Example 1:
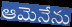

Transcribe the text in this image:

ఆమెనేను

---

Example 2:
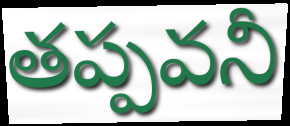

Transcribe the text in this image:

తప్పవనీ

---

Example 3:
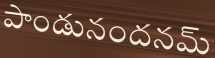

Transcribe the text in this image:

పాండునందనమ్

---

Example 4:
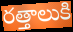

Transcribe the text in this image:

రత్తాలుకి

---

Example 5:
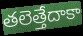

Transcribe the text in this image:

తలెత్తేదాకా